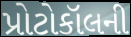
પ્રોટોકૉલની